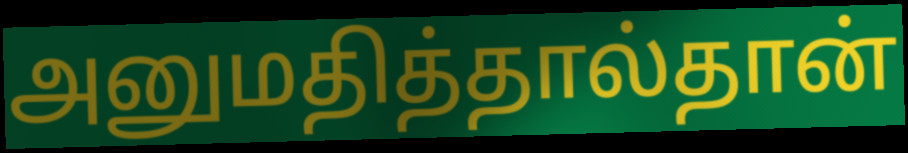
அனுமதித்தால்தான்